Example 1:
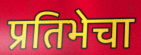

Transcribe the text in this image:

प्रतिभेचा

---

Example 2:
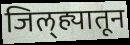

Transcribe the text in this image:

जिल्ह्यातून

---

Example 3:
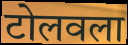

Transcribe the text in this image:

टोलवला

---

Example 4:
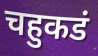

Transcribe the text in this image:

चहुकडं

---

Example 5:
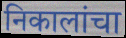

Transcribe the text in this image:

निकालांचा